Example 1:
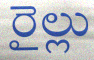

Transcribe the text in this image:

రైల్లు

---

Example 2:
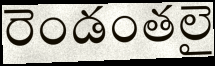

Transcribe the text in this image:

రెండంతలై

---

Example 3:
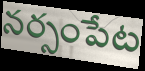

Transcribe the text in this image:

నర్సంపేట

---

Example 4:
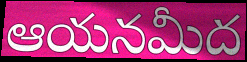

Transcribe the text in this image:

ఆయనమీద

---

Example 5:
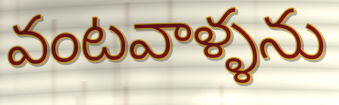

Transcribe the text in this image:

వంటవాళ్ళను